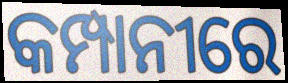
କମ୍ପାନୀରେ